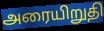
அரையிறுதி